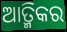
ଆତ୍ମିକର